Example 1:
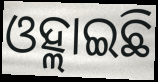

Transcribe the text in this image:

ଓହ୍ଲାଇଛି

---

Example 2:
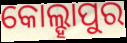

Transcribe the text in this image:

କୋଲ୍ହାପୁର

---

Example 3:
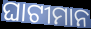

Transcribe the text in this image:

ଘାଟୀମାନ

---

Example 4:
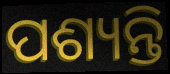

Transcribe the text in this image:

ପଶ୍ୟନ୍ତି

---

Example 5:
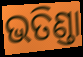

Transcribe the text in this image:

ଭତିଣ୍ଡା